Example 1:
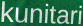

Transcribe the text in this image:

kunitari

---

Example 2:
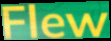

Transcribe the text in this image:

Flew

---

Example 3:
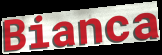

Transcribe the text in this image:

Bianca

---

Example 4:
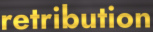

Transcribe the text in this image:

retribution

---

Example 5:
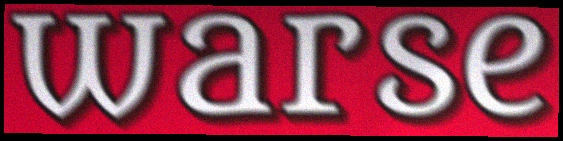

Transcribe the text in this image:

warse